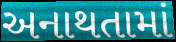
અનાથતામાં